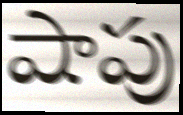
షాపు